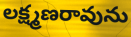
లక్ష్మణరావును